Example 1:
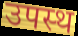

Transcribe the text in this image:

उपस्थ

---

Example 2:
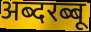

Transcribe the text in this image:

अब्दरब्बू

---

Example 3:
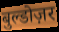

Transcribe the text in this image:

बुल्डोज़र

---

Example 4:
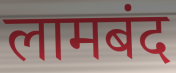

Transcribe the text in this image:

लामबंद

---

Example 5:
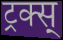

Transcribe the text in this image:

ट्रक्स्